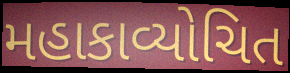
મહાકાવ્યોચિત